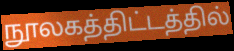
நூலகத்திட்டத்தில்